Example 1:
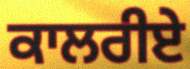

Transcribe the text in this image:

ਕਾਲਰੀਏ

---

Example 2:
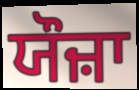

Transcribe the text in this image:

ਯੌਜ਼ਾ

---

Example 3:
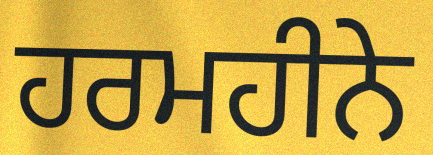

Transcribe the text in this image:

ਹਰਮਹੀਨੇ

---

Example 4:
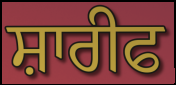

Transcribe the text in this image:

ਸ਼ਾਰੀਫ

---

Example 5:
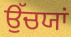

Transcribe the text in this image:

ਉੱਚਯਾਂ